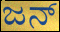
ಜನ್